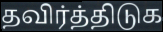
தவிர்த்திடுக